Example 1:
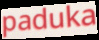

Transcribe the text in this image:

paduka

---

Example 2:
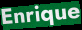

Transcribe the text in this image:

Enrique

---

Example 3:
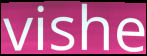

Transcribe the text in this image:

vishe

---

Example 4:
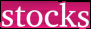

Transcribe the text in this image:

stocks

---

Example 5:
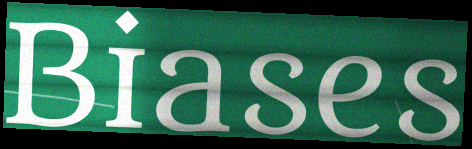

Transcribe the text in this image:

Biases